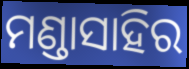
ମଣ୍ଡାସାହିର